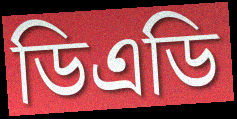
ডিএডি